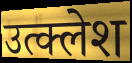
उत्क्लेश